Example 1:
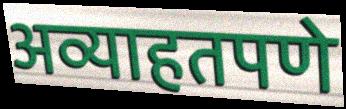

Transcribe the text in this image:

अव्याहतपणे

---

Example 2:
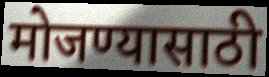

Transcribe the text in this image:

मोजण्यासाठी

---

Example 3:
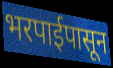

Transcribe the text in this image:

भरपाईपासून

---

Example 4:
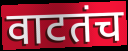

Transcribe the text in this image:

वाटतंच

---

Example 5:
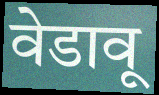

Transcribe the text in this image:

वेडावू